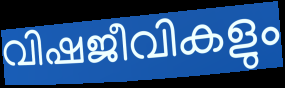
വിഷജീവികളും